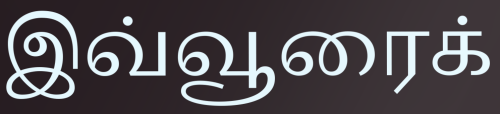
இவ்வூரைக்